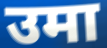
उमा